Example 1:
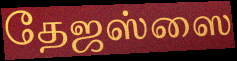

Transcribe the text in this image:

தேஜஸ்ஸை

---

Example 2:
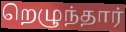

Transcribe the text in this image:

றெழுந்தார்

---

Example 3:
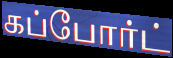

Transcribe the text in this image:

கப்போர்ட்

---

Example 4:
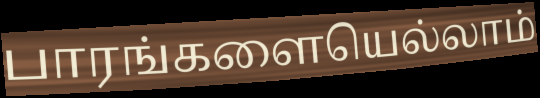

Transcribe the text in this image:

பாரங்களையெல்லாம்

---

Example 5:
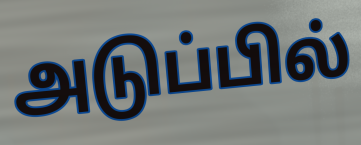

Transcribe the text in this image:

அடுப்பில்